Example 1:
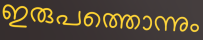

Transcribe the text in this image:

ഇരുപത്തൊന്നും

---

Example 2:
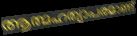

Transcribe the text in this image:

ആത്മഹത്യാപരമാണ്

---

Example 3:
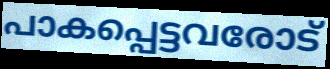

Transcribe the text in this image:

പാകപ്പെട്ടവരോട്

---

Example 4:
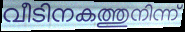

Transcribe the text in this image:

വീടിനകത്തുനിന്ന്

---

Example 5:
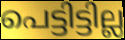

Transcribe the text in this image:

പെട്ടിട്ടില്ല